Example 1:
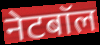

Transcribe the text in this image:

नेटबॉल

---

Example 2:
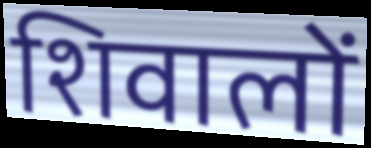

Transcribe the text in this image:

शिवालों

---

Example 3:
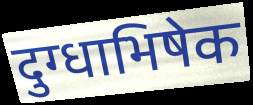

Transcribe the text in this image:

दुग्धाभिषेक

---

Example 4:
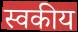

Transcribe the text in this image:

स्वकीय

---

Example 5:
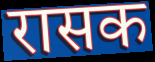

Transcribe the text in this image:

रासक